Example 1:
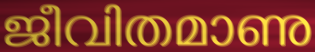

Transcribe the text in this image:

ജീവിതമാണു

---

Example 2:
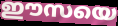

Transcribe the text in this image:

ഈസയെ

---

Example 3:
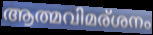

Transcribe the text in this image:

ആത്മവിമര്ശനം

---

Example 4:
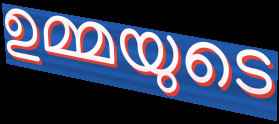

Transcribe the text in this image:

ഉമ്മയുടെ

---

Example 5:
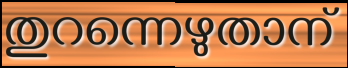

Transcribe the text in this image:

തുറന്നെഴുതാന്